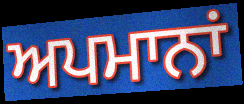
ਅਪਮਾਨਾਂ